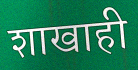
शाखाही